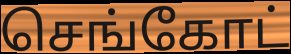
செங்கோட்